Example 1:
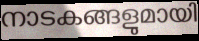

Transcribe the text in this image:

നാടകങ്ങളുമായി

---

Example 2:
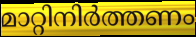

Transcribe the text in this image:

മാറ്റിനിർത്തണം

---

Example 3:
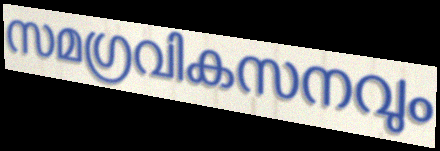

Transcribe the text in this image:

സമഗ്രവികസനവും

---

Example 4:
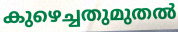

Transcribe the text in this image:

കുഴെച്ചതുമുതൽ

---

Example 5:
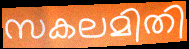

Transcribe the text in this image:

സകലമിതി